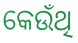
କେଉଁଥି